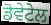
ਡੋਵੇਟੇਲ